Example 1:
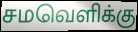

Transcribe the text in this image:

சமவெளிக்கு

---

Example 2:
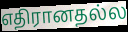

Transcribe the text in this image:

எதிரானதல்ல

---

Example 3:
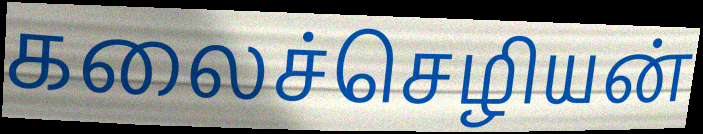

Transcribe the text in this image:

கலைச்செழியன்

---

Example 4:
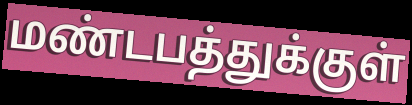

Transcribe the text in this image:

மண்டபத்துக்குள்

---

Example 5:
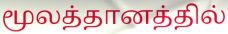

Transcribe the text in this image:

மூலத்தானத்தில்